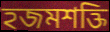
হজমশক্তি